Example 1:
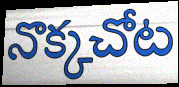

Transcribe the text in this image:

నొక్కచోట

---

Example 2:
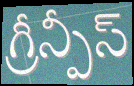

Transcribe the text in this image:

గ్రీన్పీస్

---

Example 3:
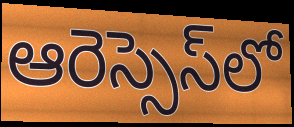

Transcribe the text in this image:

ఆరెస్సెస్‌లో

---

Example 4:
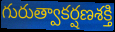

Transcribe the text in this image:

గురుత్వాకర్షణశక్తి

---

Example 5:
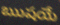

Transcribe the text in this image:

ఋషయే